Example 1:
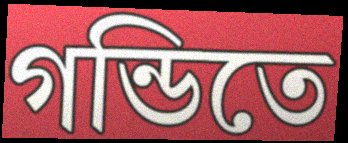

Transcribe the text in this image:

গন্ডিতে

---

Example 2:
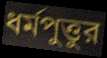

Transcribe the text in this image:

ধর্মপুত্তুর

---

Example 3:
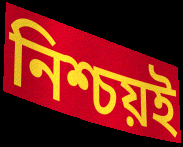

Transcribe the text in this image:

নিশ্চয়ই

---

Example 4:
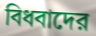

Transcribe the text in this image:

বিধবাদের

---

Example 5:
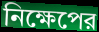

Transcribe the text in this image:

নিক্ষেপের